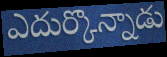
ఎదుర్కొన్నాడు